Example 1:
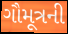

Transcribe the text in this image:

ગૌમૂત્રની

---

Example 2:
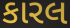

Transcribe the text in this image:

કારલ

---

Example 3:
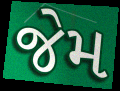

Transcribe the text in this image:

જેમ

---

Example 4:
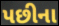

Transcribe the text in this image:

પછીના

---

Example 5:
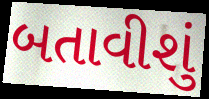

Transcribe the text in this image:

બતાવીશું